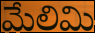
మేలిమి